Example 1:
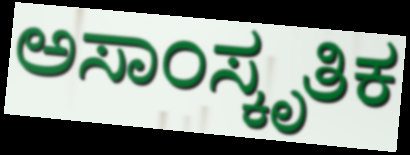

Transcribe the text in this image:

ಅಸಾಂಸ್ಕೃತಿಕ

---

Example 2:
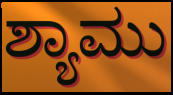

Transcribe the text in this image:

ಶ್ಯಾಮು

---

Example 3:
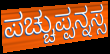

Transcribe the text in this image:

ಪಚ್ಚುಪ್ಪನ್ನಸ್ಸ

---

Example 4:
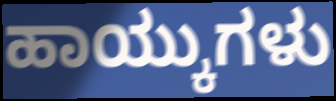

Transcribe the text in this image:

ಹಾಯ್ಕುಗಳು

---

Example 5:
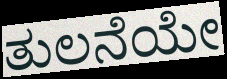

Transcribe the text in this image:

ತುಲನೆಯೇ